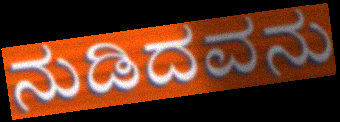
ನುಡಿದವನು